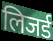
लिजर्ड